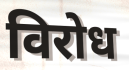
विरोध